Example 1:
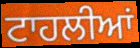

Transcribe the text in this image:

ਟਾਹਲੀਆਂ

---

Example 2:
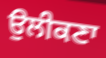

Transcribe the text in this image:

ਉਲੀਕਣਾ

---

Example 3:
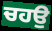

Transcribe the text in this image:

ਚਹਉ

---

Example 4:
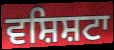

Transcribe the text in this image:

ਵਸ਼ਿਸ਼ਟਾ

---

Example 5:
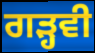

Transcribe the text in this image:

ਗੜ੍ਹਵੀ